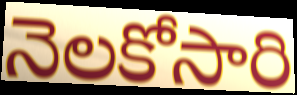
నెలకోసారి